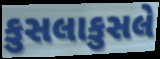
કુસલાકુસલે